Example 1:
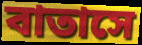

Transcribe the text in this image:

বাতাসে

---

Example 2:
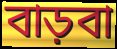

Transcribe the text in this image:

বাড়বা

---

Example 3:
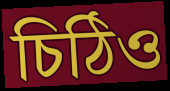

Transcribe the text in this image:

চিঠিও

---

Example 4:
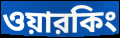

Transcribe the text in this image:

ওয়ারকিং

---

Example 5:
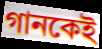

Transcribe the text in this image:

গানকেই